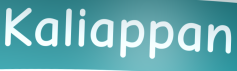
Kaliappan